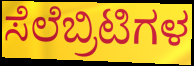
ಸೆಲೆಬ್ರಿಟಿಗಳ